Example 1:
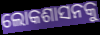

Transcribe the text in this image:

ଲୋକଶାସନକୁ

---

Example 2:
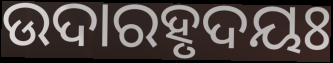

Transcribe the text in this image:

ଉଦାରହୃଦୟଃ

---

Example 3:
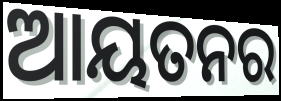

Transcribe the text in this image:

ଆୟତନର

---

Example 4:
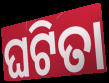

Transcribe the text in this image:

ଘଟିତା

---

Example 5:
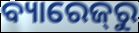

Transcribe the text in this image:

ବ୍ୟାରେଜ୍‌ରୁ